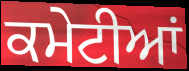
ਕਮੇਟੀਆਂ